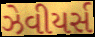
ઝેવીયર્સ